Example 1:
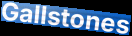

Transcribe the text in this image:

Gallstones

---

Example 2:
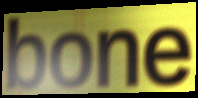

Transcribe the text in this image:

bone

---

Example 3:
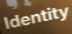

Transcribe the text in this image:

Identity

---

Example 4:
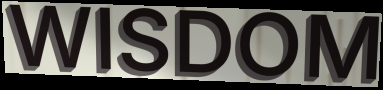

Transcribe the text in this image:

WISDOM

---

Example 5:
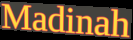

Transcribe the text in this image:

Madinah